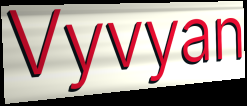
Vyvyan